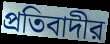
প্রতিবাদীর